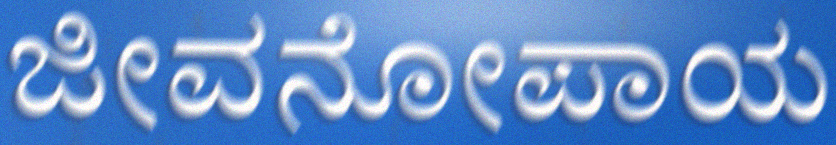
ಜೀವನೋಪಾಯ